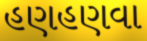
હણહણવા